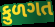
કુળગત